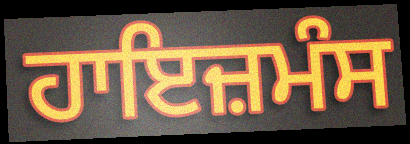
ਹਾਇਜ਼ਮੰਸ